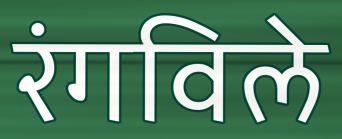
रंगविले